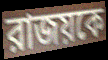
রাজয়কে